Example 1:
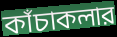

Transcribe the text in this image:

কাঁচাকলার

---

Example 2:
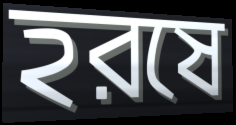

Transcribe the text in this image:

হরষে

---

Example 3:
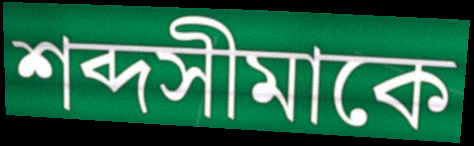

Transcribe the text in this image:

শব্দসীমাকে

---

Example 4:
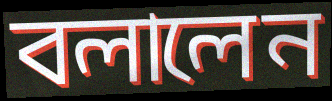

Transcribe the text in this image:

বলালেন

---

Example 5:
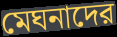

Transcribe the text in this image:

মেঘনাদের